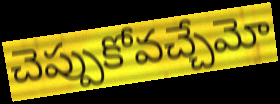
చెప్పుకోవచ్చేమో